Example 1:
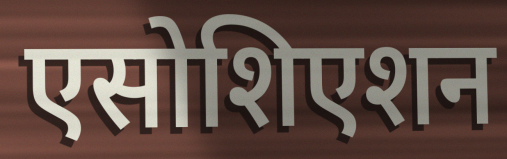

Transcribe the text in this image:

एसोशिएशन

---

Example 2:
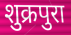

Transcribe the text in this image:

शुक्रपुरा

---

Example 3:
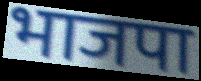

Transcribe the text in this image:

भाजपा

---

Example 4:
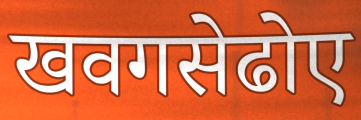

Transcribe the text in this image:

खवगसेढोए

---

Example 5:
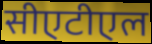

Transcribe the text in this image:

सीएटीएल